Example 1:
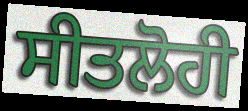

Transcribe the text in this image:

ਸੀਤਲੋਹੀ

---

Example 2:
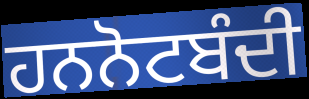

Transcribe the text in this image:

ਹਨਨੋਟਬੰਦੀ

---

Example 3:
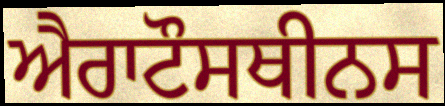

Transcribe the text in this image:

ਐਰਾਟੌਸਥੀਨਸ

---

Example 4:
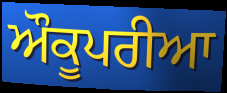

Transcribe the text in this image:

ਔਕੂਪਰੀਆ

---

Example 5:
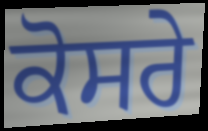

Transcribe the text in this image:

ਕੋਸਰੇ